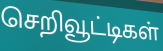
செறிவூட்டிகள்